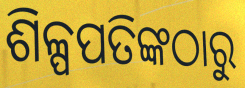
ଶିଳ୍ପପତିଙ୍କଠାରୁ